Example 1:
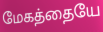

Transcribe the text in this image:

மேகத்தையே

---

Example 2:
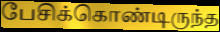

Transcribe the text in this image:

பேசிக்கொண்டிருந்த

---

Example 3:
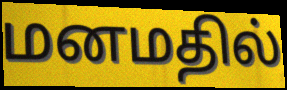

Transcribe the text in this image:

மனமதில்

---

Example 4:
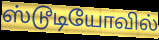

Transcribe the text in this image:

ஸ்டூடியோவில்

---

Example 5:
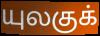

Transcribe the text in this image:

யுலகுக்